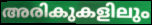
അരികുകളിലും